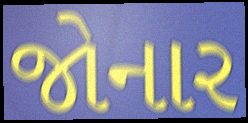
જોનાર